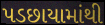
પડછાયામાંથી